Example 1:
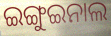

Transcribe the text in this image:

ଇଙ୍ଗୁଇନାଲ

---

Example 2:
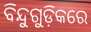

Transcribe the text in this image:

ବିନ୍ଦୁଗୁଡ଼ିକରେ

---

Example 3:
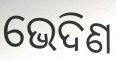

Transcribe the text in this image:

ଭେଦିଣ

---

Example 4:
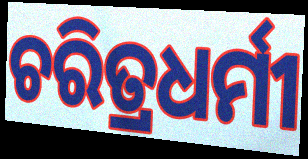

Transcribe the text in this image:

ଚରିତ୍ରଧର୍ମୀ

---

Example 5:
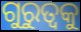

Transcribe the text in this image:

ଗୁରୁତ୍ୱକୁ